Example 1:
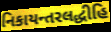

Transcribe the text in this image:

નિકાયન્તરલદ્ધીહિ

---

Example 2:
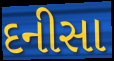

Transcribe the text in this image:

દનીસા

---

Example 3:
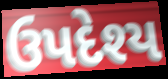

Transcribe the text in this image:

ઉપદેશ્ય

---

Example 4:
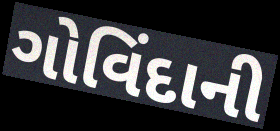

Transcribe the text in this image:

ગોવિંદાની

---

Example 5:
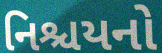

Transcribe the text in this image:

નિશ્ચયનો